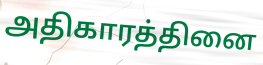
அதிகாரத்தினை